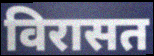
विरासत